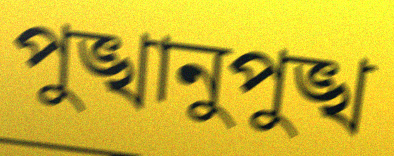
পুঙ্খানুপুঙ্খ